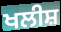
ਖਲੀਸ਼